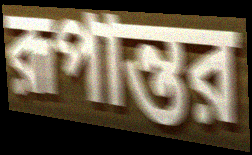
রূপান্তর